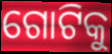
ଗୋଟିକୁ